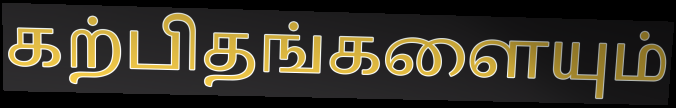
கற்பிதங்களையும்